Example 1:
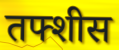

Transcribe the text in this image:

तफ्शीस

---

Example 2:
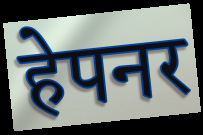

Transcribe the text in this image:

हेपनर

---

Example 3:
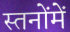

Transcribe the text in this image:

स्तनोंमें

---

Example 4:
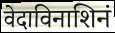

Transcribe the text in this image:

वेदाविनाशिनं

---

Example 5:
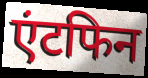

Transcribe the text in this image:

एंटफिन